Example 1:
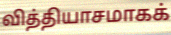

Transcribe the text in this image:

வித்தியாசமாகக்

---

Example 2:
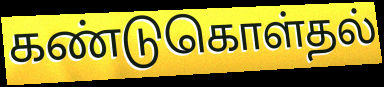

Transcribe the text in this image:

கண்டுகொள்தல்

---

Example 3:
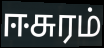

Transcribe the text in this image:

ஈசுரம்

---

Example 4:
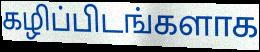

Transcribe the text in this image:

கழிப்பிடங்களாக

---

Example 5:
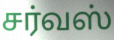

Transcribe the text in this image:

சர்வஸ்